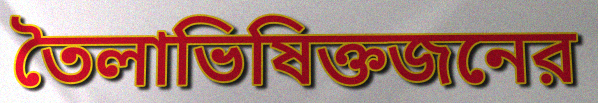
তৈলাভিষিক্তজনের